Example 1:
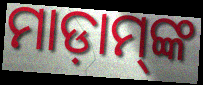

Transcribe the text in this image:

ମାଡ଼ାମ୍‌ଙ୍କ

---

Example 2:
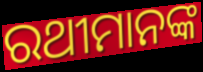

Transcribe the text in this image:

ରଥୀମାନଙ୍କ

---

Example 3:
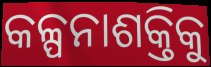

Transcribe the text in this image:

କଳ୍ପନାଶକ୍ତିକୁ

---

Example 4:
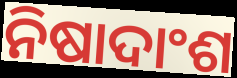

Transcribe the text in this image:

ନିଷାଦାଂଶ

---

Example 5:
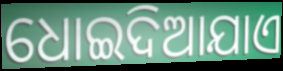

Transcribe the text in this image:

ଧୋଇଦିଆଯାଏ